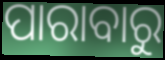
ପାରାବାରୁ